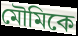
মৌমিকে